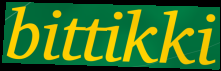
bittikki